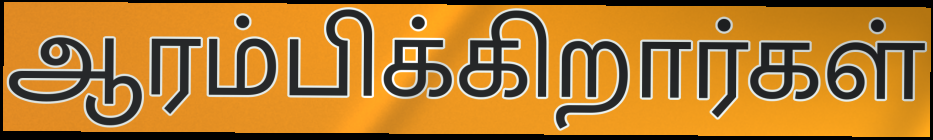
ஆரம்பிக்கிறார்கள்